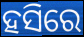
ହସିରେ